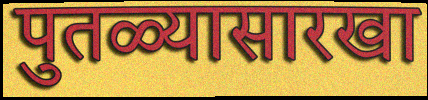
पुतळ्यासारखा